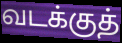
வடக்குத்